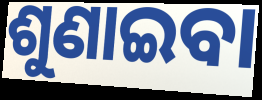
ଶୁଣାଇବା